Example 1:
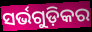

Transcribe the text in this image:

ସର୍ଭଗୁଡ଼ିକର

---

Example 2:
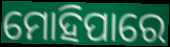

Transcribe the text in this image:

ମୋହିପାରେ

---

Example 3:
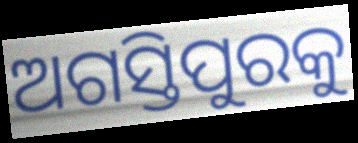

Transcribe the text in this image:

ଅଗସ୍ତିପୁରକୁ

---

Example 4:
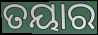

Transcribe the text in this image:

ତୟାର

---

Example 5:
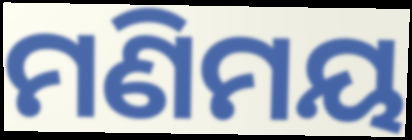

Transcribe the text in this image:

ମଣିମୟ